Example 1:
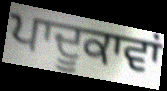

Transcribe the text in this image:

ਪਾਦੂਕਾਵਾਂ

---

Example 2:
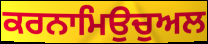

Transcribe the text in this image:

ਕਰਨਾਮਿਉਚੁਅਲ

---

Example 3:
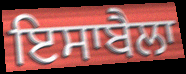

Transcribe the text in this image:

ਇਸਾਬੈਲਾ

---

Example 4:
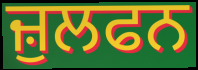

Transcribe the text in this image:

ਜ਼ੁਲਫਨ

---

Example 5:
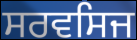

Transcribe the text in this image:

ਸਰਵਸਿਜ